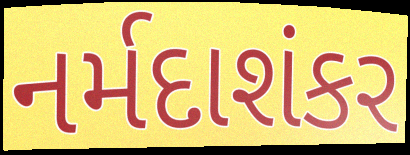
નર્મદાશંકર